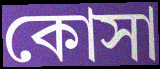
কোসা